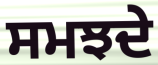
ਸਮਝਦੇ